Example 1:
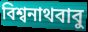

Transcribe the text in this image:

বিশ্বনাথবাবু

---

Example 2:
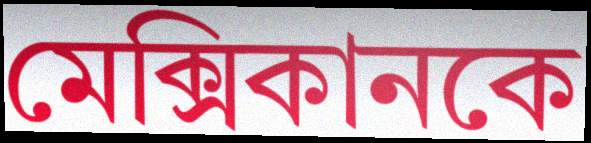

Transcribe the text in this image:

মেক্সিকানকে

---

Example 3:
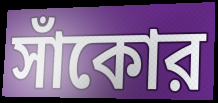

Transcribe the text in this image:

সাঁকোর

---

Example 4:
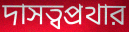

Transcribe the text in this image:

দাসত্বপ্রথার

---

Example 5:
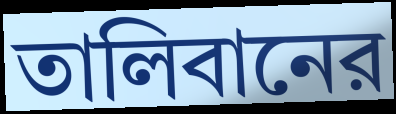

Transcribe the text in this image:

তালিবানের